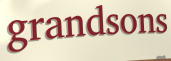
grandsons